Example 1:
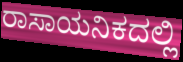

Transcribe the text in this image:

ರಾಸಾಯನಿಕದಲ್ಲಿ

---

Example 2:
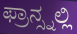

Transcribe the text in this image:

ಫ್ರಾನ್ಸ್ನಲ್ಲಿ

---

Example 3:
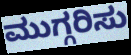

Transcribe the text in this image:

ಮುಗ್ಗರಿಸು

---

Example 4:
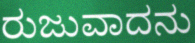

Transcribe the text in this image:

ರುಜುವಾದನು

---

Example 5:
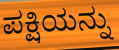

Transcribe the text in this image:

ಪಕ್ಷಿಯನ್ನು